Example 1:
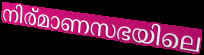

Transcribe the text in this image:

നിര്മാണസഭയിലെ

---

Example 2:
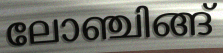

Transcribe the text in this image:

ലോഞ്ചിങ്ങ്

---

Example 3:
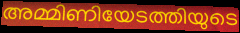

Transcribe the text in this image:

അമ്മിണിയേടത്തിയുടെ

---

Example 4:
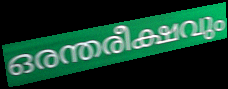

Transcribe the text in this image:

ഒരന്തരീക്ഷവും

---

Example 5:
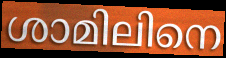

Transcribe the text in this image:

ശാമിലിനെ